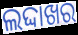
ଲଦ୍ଦାଖର